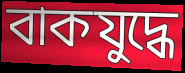
বাকযুদ্ধে